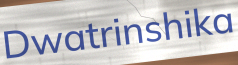
Dwatrinshika